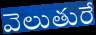
వెలుతురే